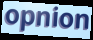
opnion